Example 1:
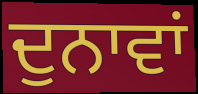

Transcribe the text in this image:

ਦੁਨਾਵਾਂ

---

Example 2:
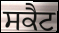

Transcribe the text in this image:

ਸਕੈਟ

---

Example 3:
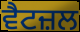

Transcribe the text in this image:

ਵੈਟਜ਼ਲ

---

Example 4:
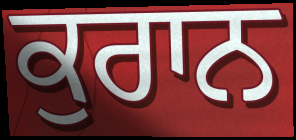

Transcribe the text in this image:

ਕੁਰਾਨ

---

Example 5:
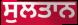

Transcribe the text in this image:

ਸੁਲਤਾਨ